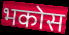
भकोस